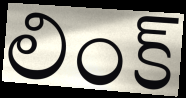
లింక్